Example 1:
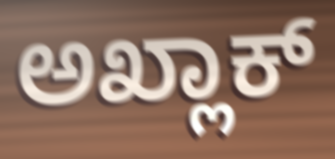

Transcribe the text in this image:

ಅಖ್ಲಾಕ್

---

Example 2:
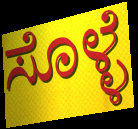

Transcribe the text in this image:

ಸೊಳ್ಳೆ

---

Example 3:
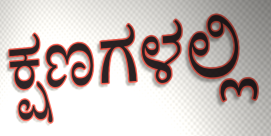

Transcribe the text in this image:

ಕ್ಷಣಗಳಲ್ಲಿ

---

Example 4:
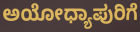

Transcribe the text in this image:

ಅಯೋಧ್ಯಾಪುರಿಗೆ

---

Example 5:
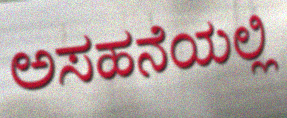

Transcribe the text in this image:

ಅಸಹನೆಯಲ್ಲಿ